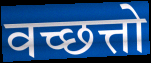
वच्छत्तो